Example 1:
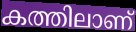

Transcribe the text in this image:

കത്തിലാണ്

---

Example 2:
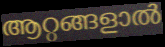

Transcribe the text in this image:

ആറ്റങ്ങളാൽ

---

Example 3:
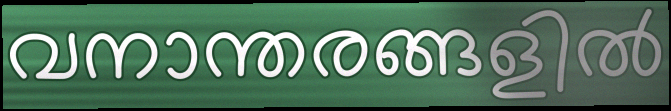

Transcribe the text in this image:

വനാന്തരങ്ങളിൽ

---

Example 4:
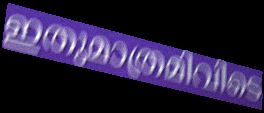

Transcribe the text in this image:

ഇതുമാത്രമിവിടെ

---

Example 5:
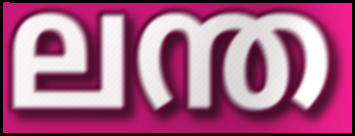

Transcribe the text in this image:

ലന്ത